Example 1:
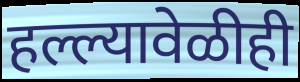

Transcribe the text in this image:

हल्ल्यावेळीही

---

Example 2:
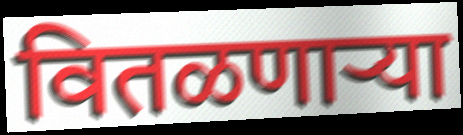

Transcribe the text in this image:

वितळणाऱ्या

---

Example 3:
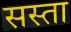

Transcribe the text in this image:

सस्ता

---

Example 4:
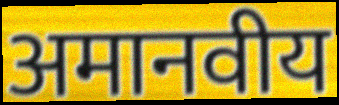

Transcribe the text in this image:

अमानवीय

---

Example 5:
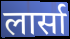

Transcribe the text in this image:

लार्सा